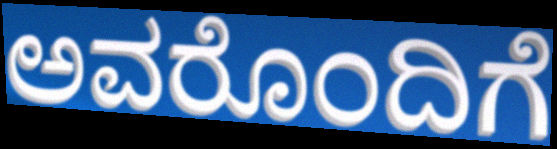
ಅವರೊಂದಿಗೆ